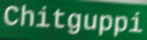
Chitguppi